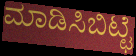
ಮಾಡಿಸಿಬಿಟ್ಟೆ